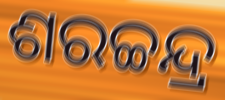
ଶରଚ୍ଚନ୍ଦ୍ର